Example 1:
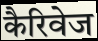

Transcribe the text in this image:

कैरिवेज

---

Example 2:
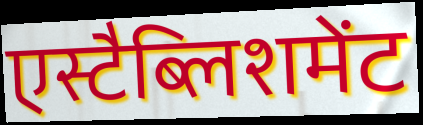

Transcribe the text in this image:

एस्टैब्लिशमेंट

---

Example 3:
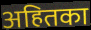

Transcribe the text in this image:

अहितका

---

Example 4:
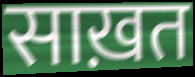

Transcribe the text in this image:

साख़त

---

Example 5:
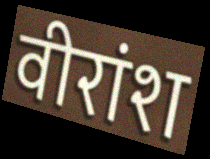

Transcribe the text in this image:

वीरांश